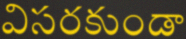
విసరకుండా